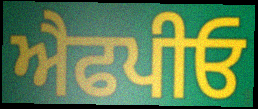
ਐਫਪੀਓ